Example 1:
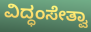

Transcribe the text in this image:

ವಿದ್ಧಂಸೇತ್ವಾ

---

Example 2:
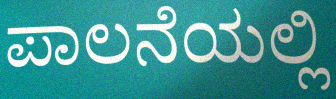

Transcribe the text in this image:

ಪಾಲನೆಯಲ್ಲಿ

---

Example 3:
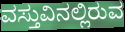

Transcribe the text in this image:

ವಸ್ತುವಿನಲ್ಲಿರುವ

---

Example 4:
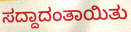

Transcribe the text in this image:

ಸದ್ದಾದಂತಾಯಿತು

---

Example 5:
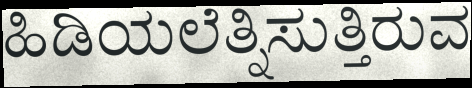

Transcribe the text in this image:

ಹಿಡಿಯಲೆತ್ನಿಸುತ್ತಿರುವ